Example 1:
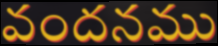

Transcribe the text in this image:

వందనము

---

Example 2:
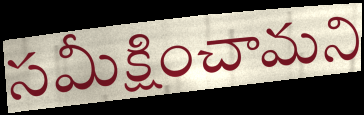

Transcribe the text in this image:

సమీక్షించామని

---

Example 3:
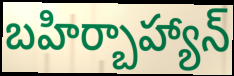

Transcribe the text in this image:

బహిర్బాహ్యాన్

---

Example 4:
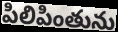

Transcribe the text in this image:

పిలిపింతును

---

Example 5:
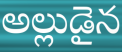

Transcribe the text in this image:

అల్లుడైన